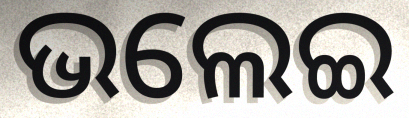
ଭଲେଇ